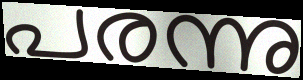
പരന്നു